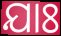
ଯାଃ